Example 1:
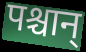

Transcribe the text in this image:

पश्चान्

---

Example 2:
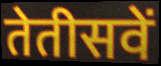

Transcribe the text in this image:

तेतीसवें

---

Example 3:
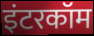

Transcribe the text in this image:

इंटरकॉम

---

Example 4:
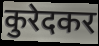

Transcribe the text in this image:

कुरेदकर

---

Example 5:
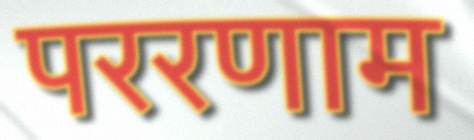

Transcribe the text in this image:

पररणाम